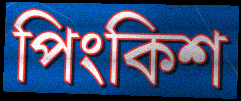
পিংকিশ